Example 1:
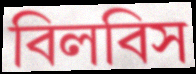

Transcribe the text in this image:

বিলবিস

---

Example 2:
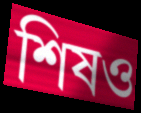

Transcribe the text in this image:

শিষও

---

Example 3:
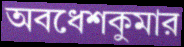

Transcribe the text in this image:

অবধেশকুমার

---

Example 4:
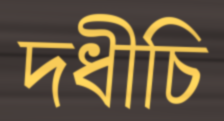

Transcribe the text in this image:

দধীচি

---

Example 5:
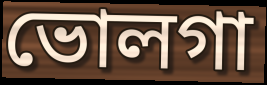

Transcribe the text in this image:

ভোলগা